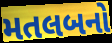
મતલબનો